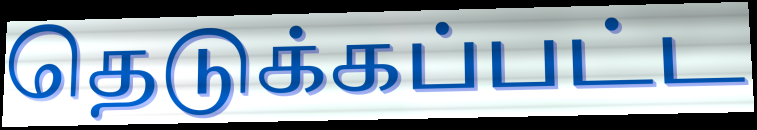
தெடுக்கப்பட்ட